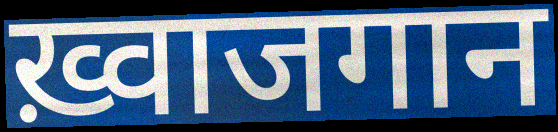
ख़्वाजगान